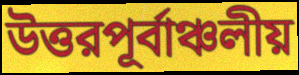
উত্তরপূর্বাঞ্চলীয়